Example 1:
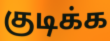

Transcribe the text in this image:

குடிக்க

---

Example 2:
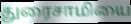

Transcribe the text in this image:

துரைசாமியை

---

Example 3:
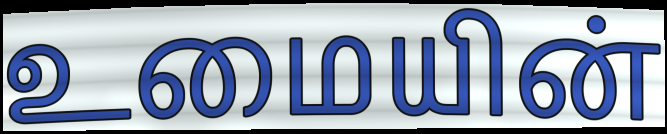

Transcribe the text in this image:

உமையின்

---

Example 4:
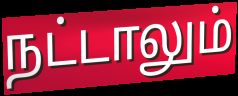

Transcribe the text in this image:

நட்டாலும்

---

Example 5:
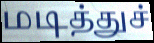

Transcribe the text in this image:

மடித்துச்